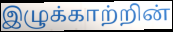
இழுக்காற்றின்